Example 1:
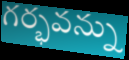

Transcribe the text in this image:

గర్భవన్ను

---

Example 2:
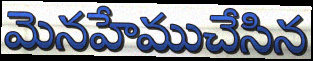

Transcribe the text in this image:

మెనహేముచేసిన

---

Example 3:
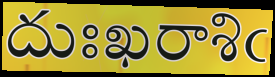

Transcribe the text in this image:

దుఃఖరాశిఁ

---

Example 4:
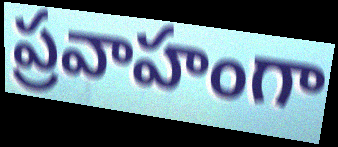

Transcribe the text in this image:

ప్రవాహంగా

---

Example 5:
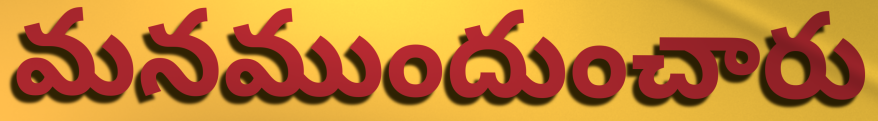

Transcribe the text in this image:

మనముందుంచారు